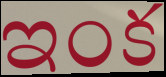
ఇంక